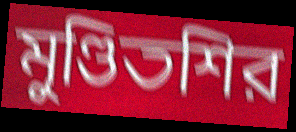
মুণ্ডিতশির